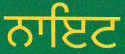
ਨਾਇਟ